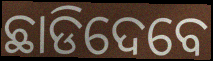
ଛାଡିଦେବେ